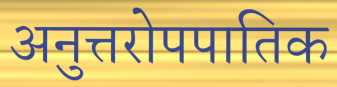
अनुत्तरोपपातिक